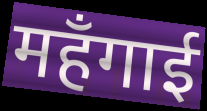
महँगाई